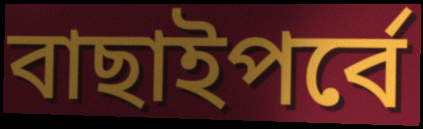
বাছাইপর্বে